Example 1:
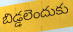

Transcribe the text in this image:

బిడ్డలెందుకు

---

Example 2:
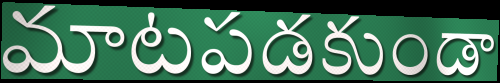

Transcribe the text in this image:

మాటపడకుండా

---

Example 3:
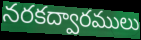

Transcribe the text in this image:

నరకద్వారములు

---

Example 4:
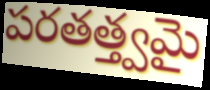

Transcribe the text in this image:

పరతత్త్వమై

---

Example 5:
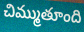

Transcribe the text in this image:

చిమ్ముతూంది